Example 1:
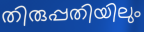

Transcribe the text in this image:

തിരുപ്പതിയിലും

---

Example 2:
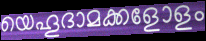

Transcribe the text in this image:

യെഹൂദാമക്കളോളം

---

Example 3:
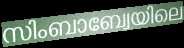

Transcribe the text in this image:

സിംബാബ്വേയിലെ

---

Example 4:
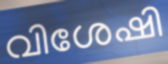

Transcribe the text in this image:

വിശേഷി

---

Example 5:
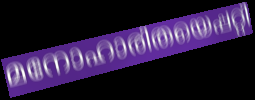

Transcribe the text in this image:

മനോഹാരിതയെപ്പറ്റി